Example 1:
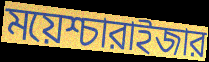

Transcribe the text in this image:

ময়েশ্চারাইজার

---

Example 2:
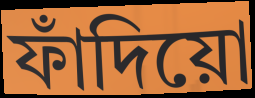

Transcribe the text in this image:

ফাঁদিয়ো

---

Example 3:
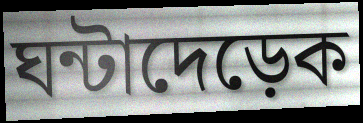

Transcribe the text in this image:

ঘন্টাদেড়েক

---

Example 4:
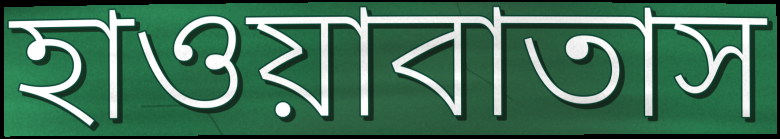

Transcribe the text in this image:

হাওয়াবাতাস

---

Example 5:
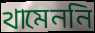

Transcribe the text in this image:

থামেননি